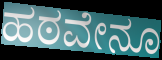
ಹಠವೇನೂ